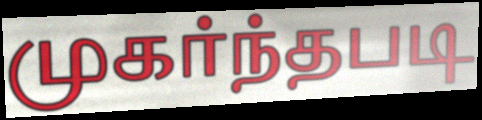
முகர்ந்தபடி